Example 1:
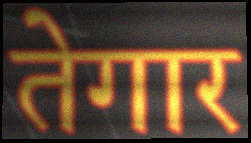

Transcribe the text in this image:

तेगार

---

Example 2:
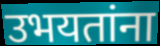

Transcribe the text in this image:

उभयतांना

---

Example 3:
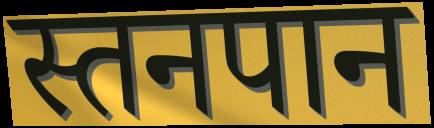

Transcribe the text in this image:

स्तनपान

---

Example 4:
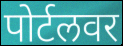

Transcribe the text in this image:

पोर्टलवर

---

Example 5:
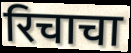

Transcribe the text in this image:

रिचाचा